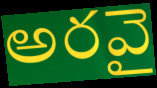
అరవై